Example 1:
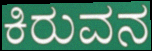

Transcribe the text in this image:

ಕಿರುವನ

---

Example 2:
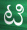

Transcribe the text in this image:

ಟಿ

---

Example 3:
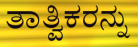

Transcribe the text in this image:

ತಾತ್ವಿಕರನ್ನು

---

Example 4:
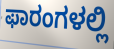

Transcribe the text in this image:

ಫಾರಂಗಳಲ್ಲಿ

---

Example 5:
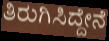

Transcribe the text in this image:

ತಿರುಗಿಸಿದ್ದೇನೆ